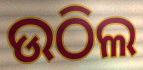
ଉଠିଲ